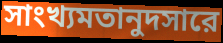
সাংখ্যমতানুদসারে